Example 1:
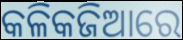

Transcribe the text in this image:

କଳିକଜିଆରେ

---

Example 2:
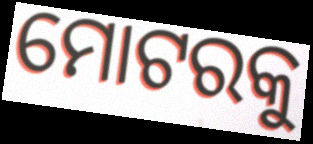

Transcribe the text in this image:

ମୋଟରକୁ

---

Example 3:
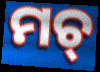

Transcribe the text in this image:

ମଚ୍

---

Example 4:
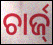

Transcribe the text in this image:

ଚାର୍ଜ୍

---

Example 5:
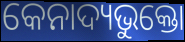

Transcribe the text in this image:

କେନାଦ୍ୟଭୁକ୍ତୋ